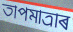
তাপমাত্ৰাৰ